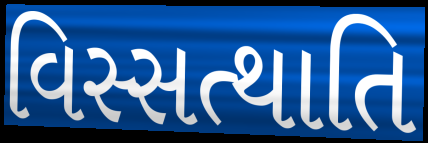
વિસ્સત્થાતિ